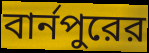
বার্নপুরের